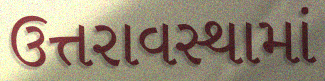
ઉત્તરાવસ્થામાં